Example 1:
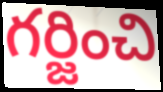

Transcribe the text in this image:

గర్జించి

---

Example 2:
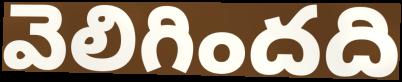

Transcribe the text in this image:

వెలిగిందది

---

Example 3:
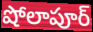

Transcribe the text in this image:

షోలాపూర్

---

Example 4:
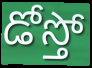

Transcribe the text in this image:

డోస్తో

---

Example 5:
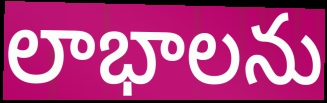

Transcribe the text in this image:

లాభాలను